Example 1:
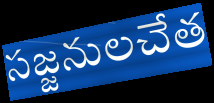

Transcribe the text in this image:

సజ్జనులచేత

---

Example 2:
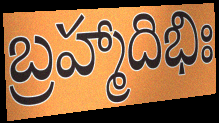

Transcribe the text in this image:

బ్రహ్మాదిభిః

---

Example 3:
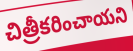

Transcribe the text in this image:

చిత్రీకరించాయని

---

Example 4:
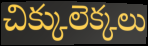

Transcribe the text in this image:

చిక్కులెక్కలు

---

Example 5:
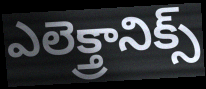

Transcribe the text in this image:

ఎలెక్త్రానిక్స్